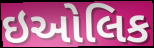
ઇઓલિક